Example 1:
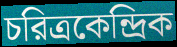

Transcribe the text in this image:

চরিত্রকেন্দ্রিক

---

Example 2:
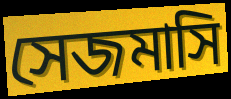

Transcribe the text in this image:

সেজমাসি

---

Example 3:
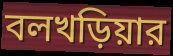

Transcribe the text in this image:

বলখড়িয়ার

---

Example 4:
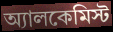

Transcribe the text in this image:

অ্যালকেমিস্ট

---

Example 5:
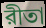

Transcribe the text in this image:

রীতা